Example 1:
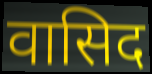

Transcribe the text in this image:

वासिद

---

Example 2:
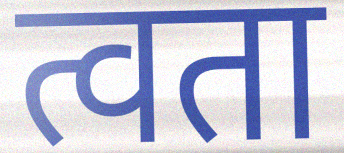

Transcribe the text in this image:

त्वता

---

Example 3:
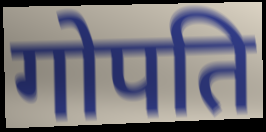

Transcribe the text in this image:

गोपति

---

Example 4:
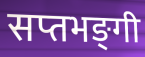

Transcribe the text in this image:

सप्तभङ्गी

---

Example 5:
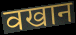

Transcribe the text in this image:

वखान